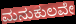
ಮನುಕುಲವೇ